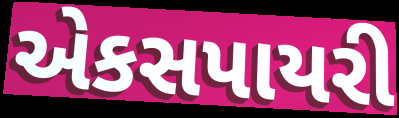
એકસપાયરી